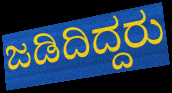
ಜಡಿದಿದ್ದರು